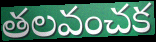
తలవంచక